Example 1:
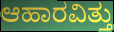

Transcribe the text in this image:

ಆಹಾರವಿತ್ತು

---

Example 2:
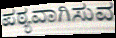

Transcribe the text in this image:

ಪಠ್ಯವಾಗಿಸುವ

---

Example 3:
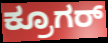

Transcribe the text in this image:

ಕ್ರೂಗರ್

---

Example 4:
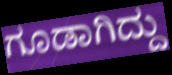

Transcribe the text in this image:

ಗೂಡಾಗಿದ್ದು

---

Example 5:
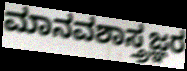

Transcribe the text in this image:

ಮಾನವಶಾಸ್ತ್ರಜ್ಞರ